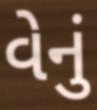
વેનું